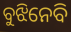
ବୁଝିନେବି